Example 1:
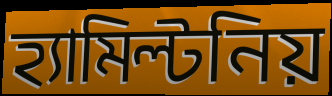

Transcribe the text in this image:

হ্যামিল্টনিয়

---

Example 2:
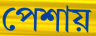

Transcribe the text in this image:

পেশায়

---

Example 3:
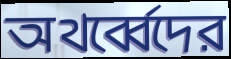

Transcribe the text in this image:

অথর্ব্বেদের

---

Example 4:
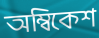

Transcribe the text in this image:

অম্বিকেশ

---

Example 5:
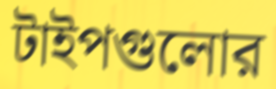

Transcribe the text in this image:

টাইপগুলোর